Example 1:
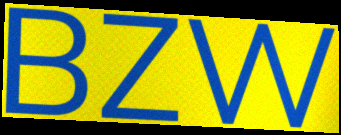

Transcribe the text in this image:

BZW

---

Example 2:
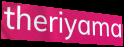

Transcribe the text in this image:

theriyama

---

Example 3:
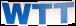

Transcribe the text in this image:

WTT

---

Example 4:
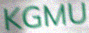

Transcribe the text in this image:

KGMU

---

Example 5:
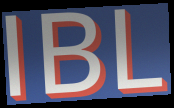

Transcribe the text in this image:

IBL